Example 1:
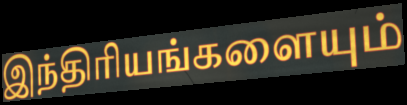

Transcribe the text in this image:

இந்திரியங்களையும்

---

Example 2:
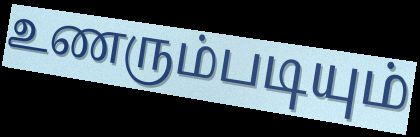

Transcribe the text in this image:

உணரும்படியும்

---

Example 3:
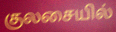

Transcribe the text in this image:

குலசையில்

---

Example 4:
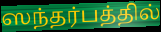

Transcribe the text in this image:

ஸந்தர்பத்தில்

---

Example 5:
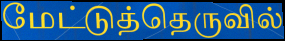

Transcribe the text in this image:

மேட்டுத்தெருவில்